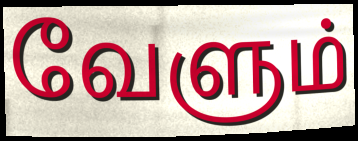
வேளும்